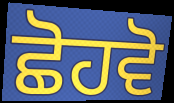
ਛੋਹਵੋ